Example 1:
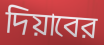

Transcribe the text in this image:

দিয়াবের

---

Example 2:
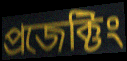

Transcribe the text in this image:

প্রজেক্টিং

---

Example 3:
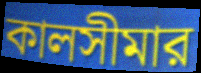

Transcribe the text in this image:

কালসীমার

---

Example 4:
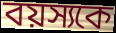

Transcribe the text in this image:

বয়স্যকে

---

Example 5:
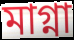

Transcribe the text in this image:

মাগ্না